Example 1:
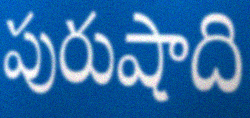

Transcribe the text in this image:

పురుషాది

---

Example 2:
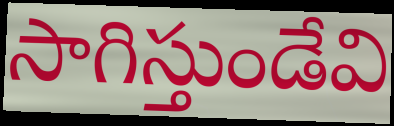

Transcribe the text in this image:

సాగిస్తుండేవి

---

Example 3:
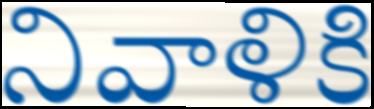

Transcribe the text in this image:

నివాళికి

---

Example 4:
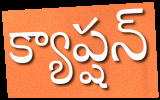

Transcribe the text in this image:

క్యాప్షన్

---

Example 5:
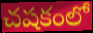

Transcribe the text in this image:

చషకంలో